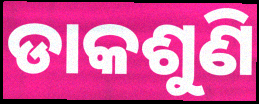
ଡାକଶୁଣି